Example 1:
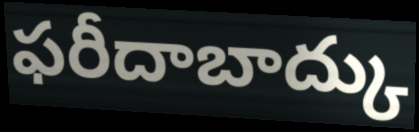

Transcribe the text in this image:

ఫరీదాబాద్కు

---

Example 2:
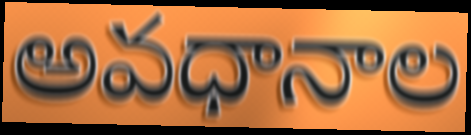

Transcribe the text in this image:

అవధానాల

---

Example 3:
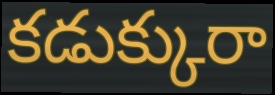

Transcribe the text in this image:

కడుక్కురా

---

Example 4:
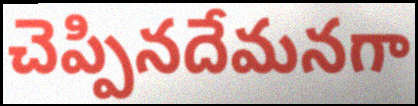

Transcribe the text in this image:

చెప్పినదేమనగా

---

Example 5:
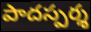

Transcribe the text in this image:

పాదస్పర్శ